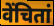
वेंचितां